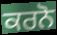
ਕਰਨੋ